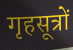
गृहसूत्रों